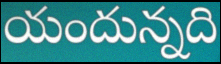
యందున్నది